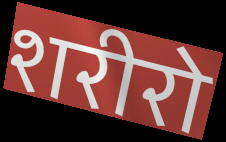
शरीरो